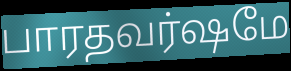
பாரதவர்ஷமே